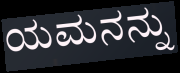
ಯಮನನ್ನು